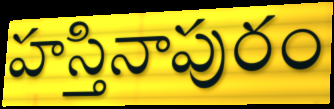
హస్తినాపురం